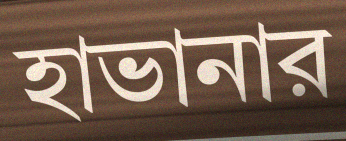
হাভানার